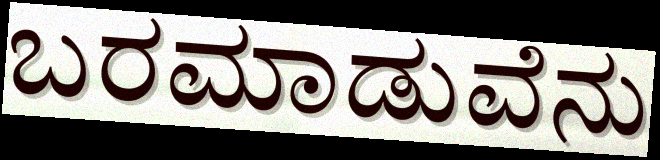
ಬರಮಾಡುವೆನು